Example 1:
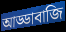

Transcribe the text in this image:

আড্ডাবাজি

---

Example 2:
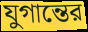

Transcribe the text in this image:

যুগান্তের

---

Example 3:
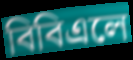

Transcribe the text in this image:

বিবিএলে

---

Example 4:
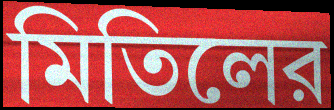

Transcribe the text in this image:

মিতিলের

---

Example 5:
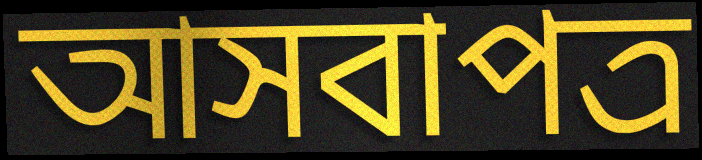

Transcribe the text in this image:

আসবাপত্র